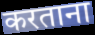
करताना